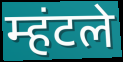
म्हंटले